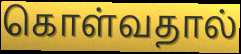
கொள்வதால்